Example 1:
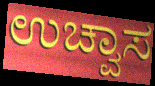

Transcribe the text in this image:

ಉಚ್ವಾಸ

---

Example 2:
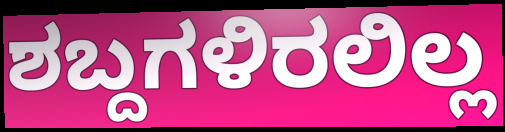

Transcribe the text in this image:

ಶಬ್ದಗಳಿರಲಿಲ್ಲ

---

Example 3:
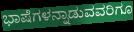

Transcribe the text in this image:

ಭಾಷೆಗಳನ್ನಾಡುವವರಿಗೂ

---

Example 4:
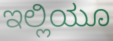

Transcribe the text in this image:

ಇಲ್ಲಿಯೂ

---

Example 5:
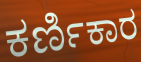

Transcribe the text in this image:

ಕರ್ಣಿಕಾರ